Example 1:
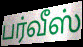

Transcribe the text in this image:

பர்வீஸ்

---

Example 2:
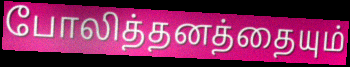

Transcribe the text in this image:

போலித்தனத்தையும்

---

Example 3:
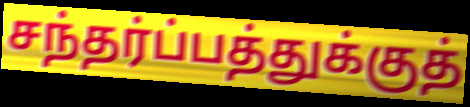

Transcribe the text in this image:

சந்தர்ப்பத்துக்குத்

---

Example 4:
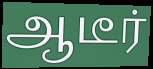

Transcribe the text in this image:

ஆடீர்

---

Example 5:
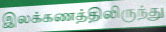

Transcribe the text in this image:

இலக்கணத்திலிருந்து